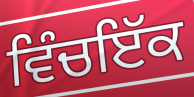
ਵਿੰਚਇੱਕ